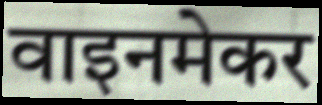
वाइनमेकर